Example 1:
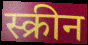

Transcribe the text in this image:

स्क्रीन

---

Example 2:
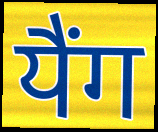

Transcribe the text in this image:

यैंग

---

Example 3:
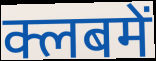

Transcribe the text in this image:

क्लबमें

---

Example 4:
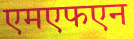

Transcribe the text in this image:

एमएफएन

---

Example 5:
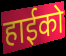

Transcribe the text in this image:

हाईको